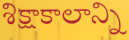
శిక్షాకాలాన్ని